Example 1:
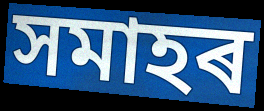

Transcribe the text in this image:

সমাহৰ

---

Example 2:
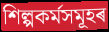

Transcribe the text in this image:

শিল্পকৰ্মসমূহৰ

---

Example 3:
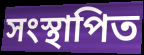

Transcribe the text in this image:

সংস্থাপিত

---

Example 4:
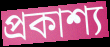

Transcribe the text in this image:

প্ৰকাশ্য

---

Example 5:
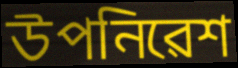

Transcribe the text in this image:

উপনিৱেশ